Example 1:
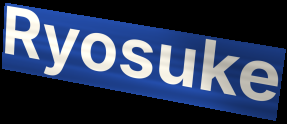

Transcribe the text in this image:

Ryosuke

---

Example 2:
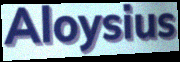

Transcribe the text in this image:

Aloysius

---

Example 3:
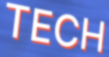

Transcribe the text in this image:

TECH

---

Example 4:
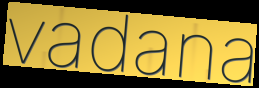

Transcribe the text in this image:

vadana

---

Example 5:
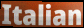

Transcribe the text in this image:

Italian